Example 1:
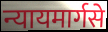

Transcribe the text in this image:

न्यायमार्गसे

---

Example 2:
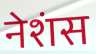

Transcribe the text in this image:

नेशंस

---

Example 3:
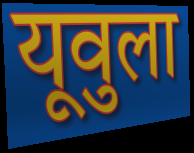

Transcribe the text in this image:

यूवुला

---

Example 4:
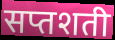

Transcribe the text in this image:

सप्तशती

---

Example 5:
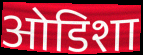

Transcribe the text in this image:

ओडिशा